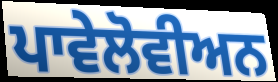
ਪਾਵੇਲੋਵੀਅਨ